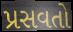
પ્રસવતો